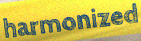
harmonized